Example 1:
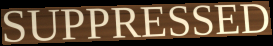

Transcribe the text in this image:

SUPPRESSED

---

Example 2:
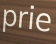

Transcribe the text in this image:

prie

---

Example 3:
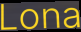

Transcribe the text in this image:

Lona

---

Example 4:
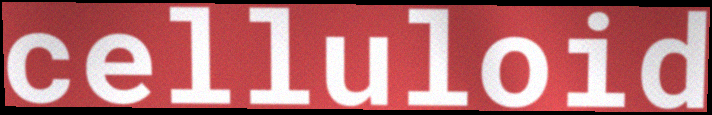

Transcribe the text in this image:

celluloid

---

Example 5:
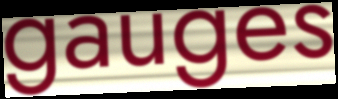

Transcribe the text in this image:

gauges